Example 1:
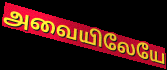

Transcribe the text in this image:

அவையிலேயே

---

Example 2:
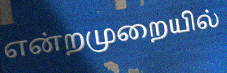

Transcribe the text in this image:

என்றமுறையில்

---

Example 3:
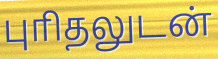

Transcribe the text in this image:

புரிதலுடன்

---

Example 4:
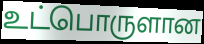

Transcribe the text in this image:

உட்பொருளான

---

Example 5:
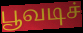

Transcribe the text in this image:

பூவடிச்